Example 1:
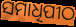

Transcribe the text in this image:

ସମାଧିପୀଠ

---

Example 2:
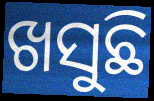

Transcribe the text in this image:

ଖସୁଛି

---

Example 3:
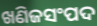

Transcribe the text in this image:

ଖଣିଜସଂପଦ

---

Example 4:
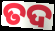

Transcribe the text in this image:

ତଦ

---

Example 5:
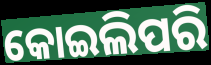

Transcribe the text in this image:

କୋଇଲିପରି